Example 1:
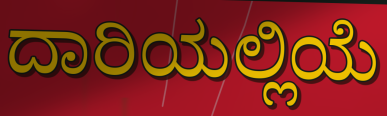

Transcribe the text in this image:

ದಾರಿಯಲ್ಲಿಯೆ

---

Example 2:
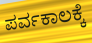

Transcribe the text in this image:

ಪರ್ವಕಾಲಕ್ಕೆ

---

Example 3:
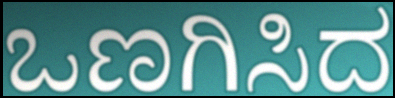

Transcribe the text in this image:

ಒಣಗಿಸಿದ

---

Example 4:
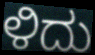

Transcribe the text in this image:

ಳಿದು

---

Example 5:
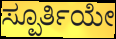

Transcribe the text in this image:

ಸ್ಪೂರ್ತಿಯೇ